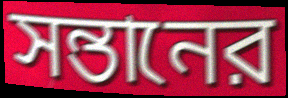
সন্তানের